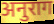
अनुराग